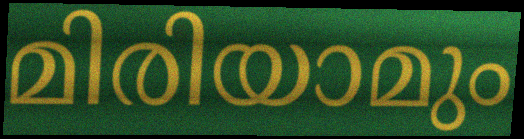
മിരിയാമും